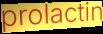
prolactin